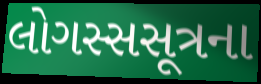
લોગસ્સસૂત્રના